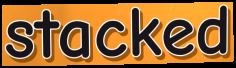
stacked